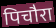
पिचौरा